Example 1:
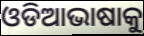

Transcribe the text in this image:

ଓଡିଆଭାଷାକୁ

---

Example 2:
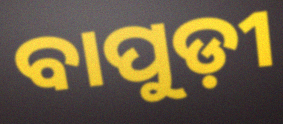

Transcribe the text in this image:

ବାପୁଡ଼ୀ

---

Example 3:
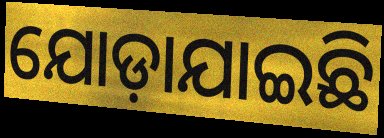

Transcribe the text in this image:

ଯୋଡ଼ାଯାଇଛି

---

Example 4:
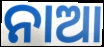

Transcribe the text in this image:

ନାଆ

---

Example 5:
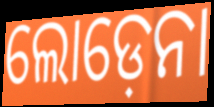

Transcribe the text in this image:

ଲୋଡ଼େନା